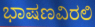
ಭಾಷಣವಿರಲಿ